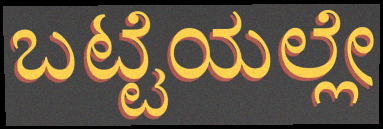
ಬಟ್ಟೆಯಲ್ಲೇ